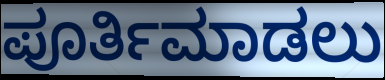
ಪೂರ್ತಿಮಾಡಲು